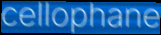
cellophane